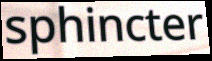
sphincter